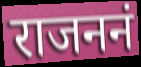
राजननं